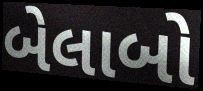
બેલાબો